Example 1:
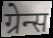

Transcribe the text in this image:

ग्रेन्स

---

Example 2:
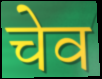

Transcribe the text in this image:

चेव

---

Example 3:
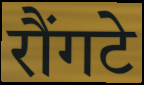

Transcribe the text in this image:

रौंगटे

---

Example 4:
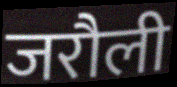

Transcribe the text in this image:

जरौली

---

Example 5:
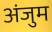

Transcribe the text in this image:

अंजुम